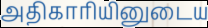
அதிகாரியினுடைய